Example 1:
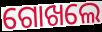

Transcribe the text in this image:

ଗୋଖଲେ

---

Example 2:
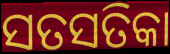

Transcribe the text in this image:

ସତସତିକା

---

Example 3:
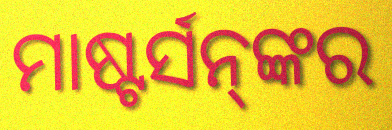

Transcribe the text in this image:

ମାଷ୍ଟର୍ସନ୍‌ଙ୍କର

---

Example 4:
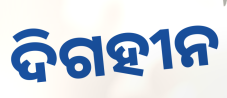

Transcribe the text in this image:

ଦିଗହୀନ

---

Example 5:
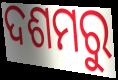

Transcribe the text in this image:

ଦଶମରୁ